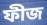
ফীজ